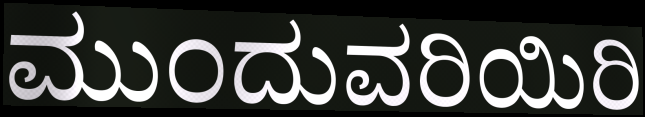
ಮುಂದುವರಿಯಿರಿ